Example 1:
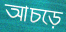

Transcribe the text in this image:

আচড়ে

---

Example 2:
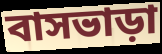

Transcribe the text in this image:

বাসভাড়া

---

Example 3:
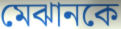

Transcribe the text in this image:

মেঝানকে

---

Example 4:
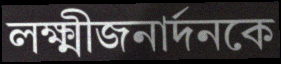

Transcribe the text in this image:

লক্ষ্মীজনার্দনকে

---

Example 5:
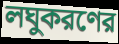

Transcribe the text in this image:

লঘুকরণের